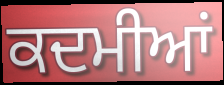
ਕਦਮੀਆਂ